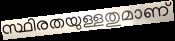
സ്ഥിരതയുള്ളതുമാണ്